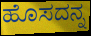
ಹೊಸದನ್ನ